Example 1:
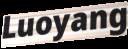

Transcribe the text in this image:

Luoyang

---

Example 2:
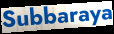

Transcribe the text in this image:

Subbaraya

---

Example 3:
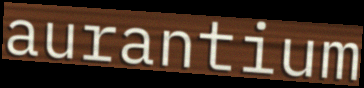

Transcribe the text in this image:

aurantium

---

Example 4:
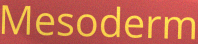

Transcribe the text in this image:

Mesoderm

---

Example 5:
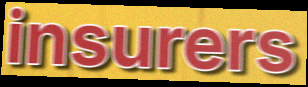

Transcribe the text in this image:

insurers